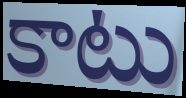
కాటు